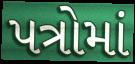
પત્રોમાં